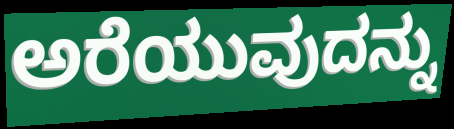
ಅರೆಯುವುದನ್ನು